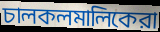
চালকলমালিকেরা